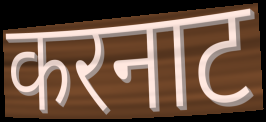
करनाट